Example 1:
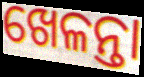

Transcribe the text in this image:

ଖେଳନ୍ତା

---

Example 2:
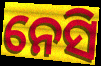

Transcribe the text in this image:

ନେସି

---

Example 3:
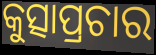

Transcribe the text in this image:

କୁତ୍ସାପ୍ରଚାର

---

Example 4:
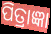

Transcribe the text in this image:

ପିତ୍ରାଜ୍ଞା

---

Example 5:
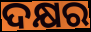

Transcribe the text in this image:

ଦକ୍ଷର